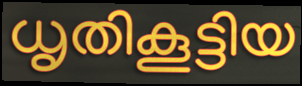
ധൃതികൂട്ടിയ